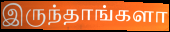
இருந்தாங்களா